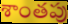
శాంతపు